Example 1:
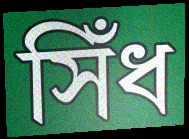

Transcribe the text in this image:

সিঁধ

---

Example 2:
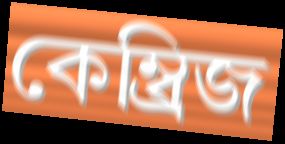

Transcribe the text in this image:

কেম্ব্রিজ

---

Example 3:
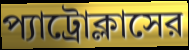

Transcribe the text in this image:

প্যাট্রোক্লাসের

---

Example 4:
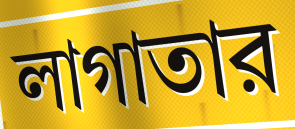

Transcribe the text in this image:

লাগাতার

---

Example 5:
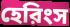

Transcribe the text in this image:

হেরিংস